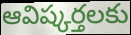
ఆవిష్కర్తలకు